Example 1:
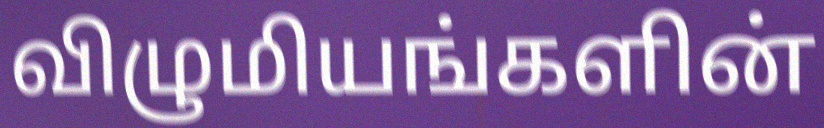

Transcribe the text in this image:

விழுமியங்களின்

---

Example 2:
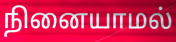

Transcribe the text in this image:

நினையாமல்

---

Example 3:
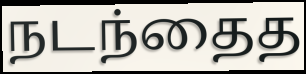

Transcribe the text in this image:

நடந்தைத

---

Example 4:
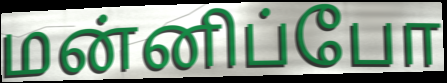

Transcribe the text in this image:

மன்னிப்போ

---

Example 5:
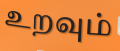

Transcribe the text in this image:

உறவும்